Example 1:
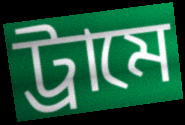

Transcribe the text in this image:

ট্রামে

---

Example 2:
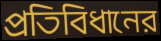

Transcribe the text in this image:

প্রতিবিধানের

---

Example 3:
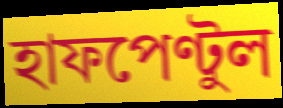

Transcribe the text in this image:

হাফপেণ্টুল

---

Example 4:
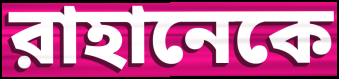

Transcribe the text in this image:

রাহানেকে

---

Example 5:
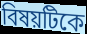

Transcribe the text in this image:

বিষয়টিকে